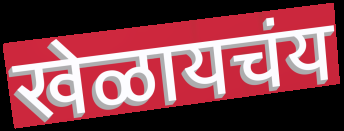
खेळायचंय